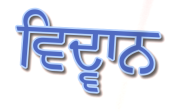
ਵਿਦ੍ਵਾਨ